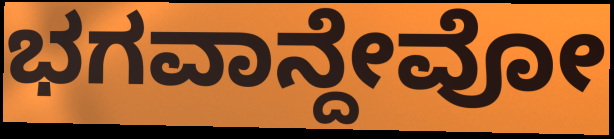
ಭಗವಾನ್ದೇವೋ